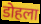
डोहला